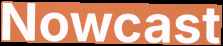
Nowcast